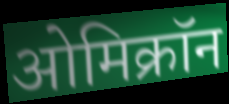
ओमिक्रॉन